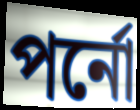
পর্নো